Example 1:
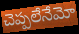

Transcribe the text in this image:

చెప్పలేనేమో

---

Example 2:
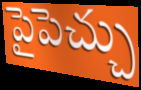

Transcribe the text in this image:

పైపెచ్చు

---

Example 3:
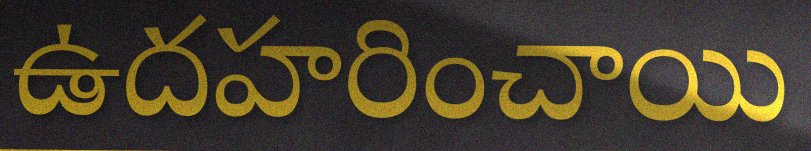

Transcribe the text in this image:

ఉదహరించాయి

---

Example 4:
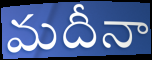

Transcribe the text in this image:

మదీనా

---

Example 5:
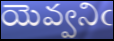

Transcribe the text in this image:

యెవ్వనిఁ